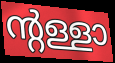
ന്റള്ളാ